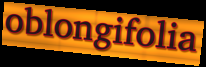
oblongifolia